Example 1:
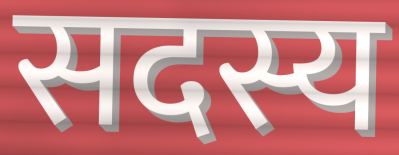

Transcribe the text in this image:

सदस्य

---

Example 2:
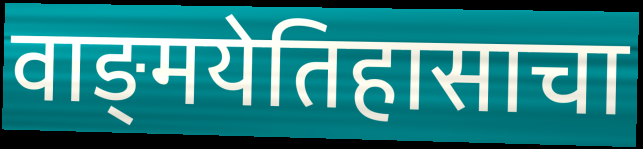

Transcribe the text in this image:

वाङ्मयेतिहासाचा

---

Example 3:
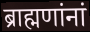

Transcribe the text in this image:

ब्राह्मणांनां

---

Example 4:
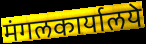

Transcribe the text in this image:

मंगलकार्यालये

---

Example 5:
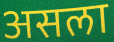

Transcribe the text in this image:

असला